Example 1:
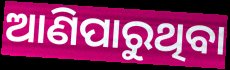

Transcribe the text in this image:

ଆଣିପାରୁଥିବା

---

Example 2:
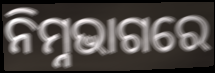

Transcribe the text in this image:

ନିମ୍ନଭାଗରେ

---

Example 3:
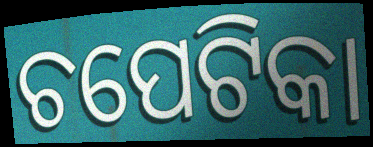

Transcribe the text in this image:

ଚପେଟିକା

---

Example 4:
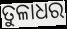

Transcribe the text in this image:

ତୁଳାଧର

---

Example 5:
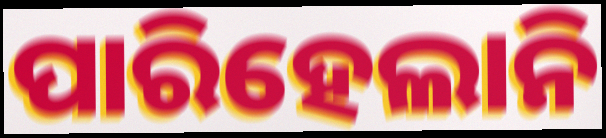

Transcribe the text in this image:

ପାରିହେଲାନି